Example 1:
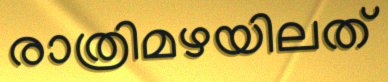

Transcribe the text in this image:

രാത്രിമഴയിലത്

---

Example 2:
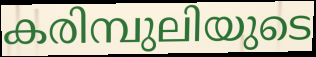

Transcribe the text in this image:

കരിമ്പുലിയുടെ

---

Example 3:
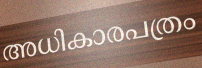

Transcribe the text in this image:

അധികാരപത്രം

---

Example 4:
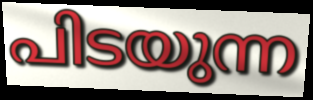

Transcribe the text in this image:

പിടയുന്ന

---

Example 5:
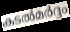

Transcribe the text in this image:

കടൽമർദ്ദം